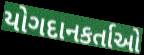
યોગદાનકર્તાઓ